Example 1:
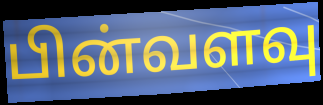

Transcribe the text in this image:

பின்வளவு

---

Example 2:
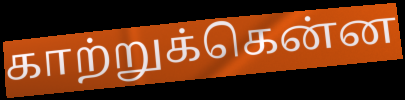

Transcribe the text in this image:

காற்றுக்கென்ன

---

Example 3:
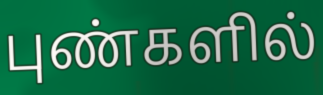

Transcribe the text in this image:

புண்களில்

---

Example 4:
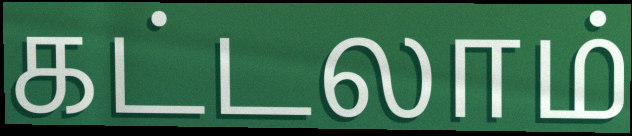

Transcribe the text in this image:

கட்டலாம்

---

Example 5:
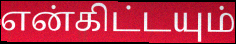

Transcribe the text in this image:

என்கிட்டயும்